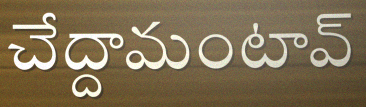
చేద్దామంటావ్